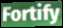
Fortify